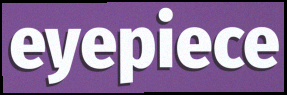
eyepiece